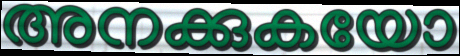
അനക്കുകയോ